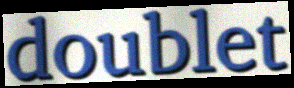
doublet